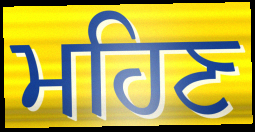
ਮਹਿਣ